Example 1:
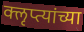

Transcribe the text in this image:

क्लृप्त्यांच्या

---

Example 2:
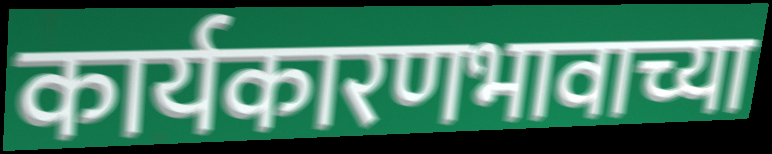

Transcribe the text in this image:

कार्यकारणभावाच्या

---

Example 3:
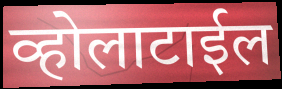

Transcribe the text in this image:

व्होलाटाईल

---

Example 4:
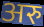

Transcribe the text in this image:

अरु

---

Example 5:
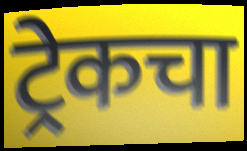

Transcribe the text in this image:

ट्रेकचा